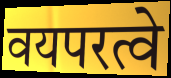
वयपरत्वे